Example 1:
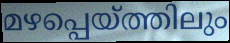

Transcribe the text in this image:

മഴപ്പെയ്ത്തിലും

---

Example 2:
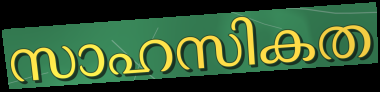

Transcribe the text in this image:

സാഹസികത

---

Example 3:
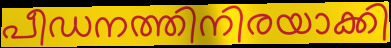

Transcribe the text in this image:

പീഡനത്തിനിരയാക്കി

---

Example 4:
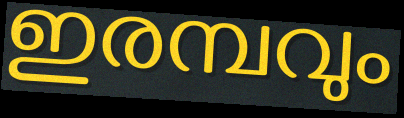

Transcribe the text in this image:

ഇരമ്പവും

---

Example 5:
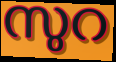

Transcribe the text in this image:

സുറ